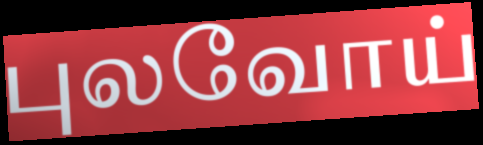
புலவோய்